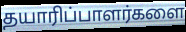
தயாரிப்பாளர்களை